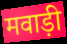
मवाड़ी